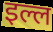
इल्ल